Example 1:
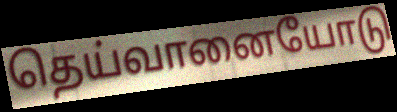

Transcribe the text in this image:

தெய்வானையோடு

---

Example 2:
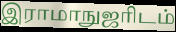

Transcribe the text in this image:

இராமாநுஜரிடம்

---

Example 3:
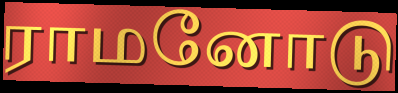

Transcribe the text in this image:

ராமனோடு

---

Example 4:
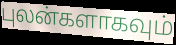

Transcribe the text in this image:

புலன்களாகவும்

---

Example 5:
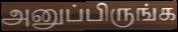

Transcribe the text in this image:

அனுப்பிருங்க